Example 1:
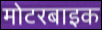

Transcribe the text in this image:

मोटरबाइक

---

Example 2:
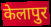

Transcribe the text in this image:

केलापुर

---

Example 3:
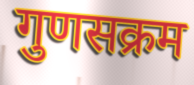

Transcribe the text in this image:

गुणसक्रम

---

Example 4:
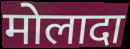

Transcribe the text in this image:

मोलादा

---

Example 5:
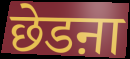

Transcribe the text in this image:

छेडऩा